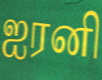
ஐரனி